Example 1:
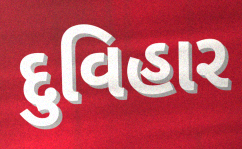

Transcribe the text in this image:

દુવિહાર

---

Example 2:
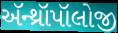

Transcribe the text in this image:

ઍન્થ્રૉપૉલોજી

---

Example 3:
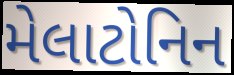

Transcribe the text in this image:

મેલાટોનિન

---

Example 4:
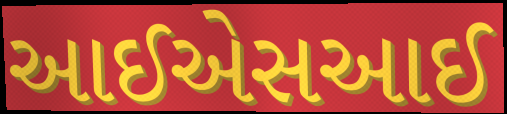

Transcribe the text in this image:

આઈએસઆઈ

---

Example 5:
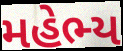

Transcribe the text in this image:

મહેભ્ય